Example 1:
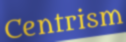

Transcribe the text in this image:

Centrism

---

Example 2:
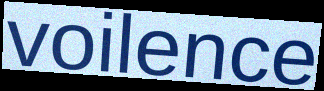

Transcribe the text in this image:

voilence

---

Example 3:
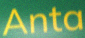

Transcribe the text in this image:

Anta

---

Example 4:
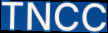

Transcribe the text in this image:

TNCC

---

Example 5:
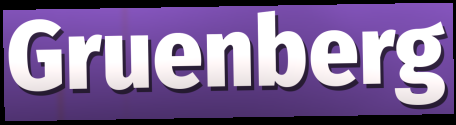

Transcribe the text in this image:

Gruenberg